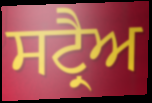
ਸਟ੍ਰੈਅ